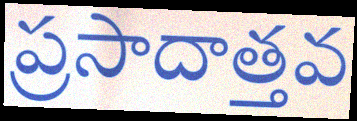
ప్రసాదాత్తవ